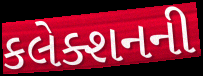
કલેક્શનની